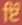
ਇੰ